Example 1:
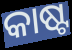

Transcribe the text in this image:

କାଷ୍ଟ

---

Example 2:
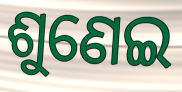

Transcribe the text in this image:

ଶୁଣେଇ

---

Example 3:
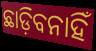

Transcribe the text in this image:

ଛାଡ଼ିବନାହିଁ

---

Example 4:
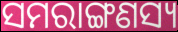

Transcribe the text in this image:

ସମରାଙ୍ଗଣସ୍ୟ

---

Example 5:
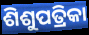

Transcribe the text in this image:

ଶିଶୁପତ୍ରିକା